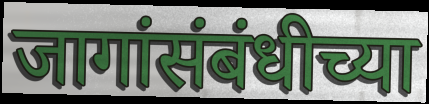
जागांसंबंधीच्या